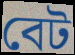
বেট